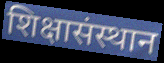
शिक्षासंस्थान